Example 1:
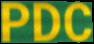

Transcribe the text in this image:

PDC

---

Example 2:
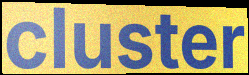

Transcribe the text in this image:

cluster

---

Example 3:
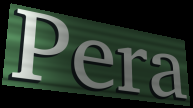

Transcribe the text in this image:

Pera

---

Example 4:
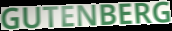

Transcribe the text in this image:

GUTENBERG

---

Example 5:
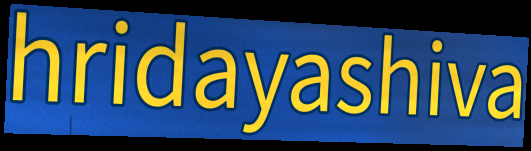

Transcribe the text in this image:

hridayashiva